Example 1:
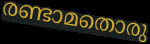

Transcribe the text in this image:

രണ്ടാമതൊരു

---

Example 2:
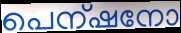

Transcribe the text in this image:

പെന്ഷനോ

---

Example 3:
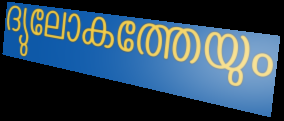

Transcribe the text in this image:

ദ്യുലോകത്തേയും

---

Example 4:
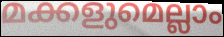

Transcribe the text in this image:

മക്കളുമെല്ലാം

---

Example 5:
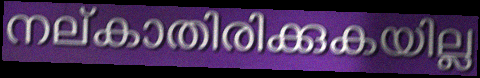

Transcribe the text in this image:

നല്‌കാതിരിക്കുകയില്ല